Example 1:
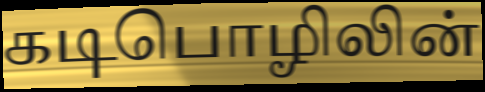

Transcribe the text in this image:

கடிபொழிலின்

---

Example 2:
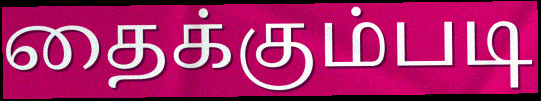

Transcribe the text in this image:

தைக்கும்படி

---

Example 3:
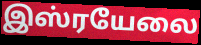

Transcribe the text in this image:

இஸ்ரயேலை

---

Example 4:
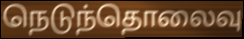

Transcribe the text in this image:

நெடுந்தொலைவு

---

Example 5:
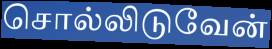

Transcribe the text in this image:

சொல்லிடுவேன்